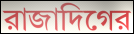
রাজাদিগের